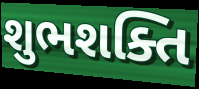
શુભશક્તિ